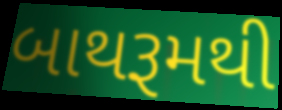
બાથરૂમથી